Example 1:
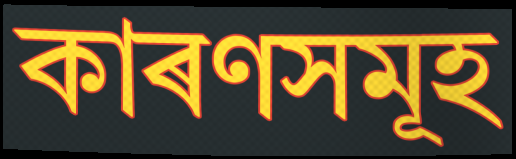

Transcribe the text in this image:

কাৰণসমূহ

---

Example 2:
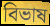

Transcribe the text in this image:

বিভাষ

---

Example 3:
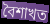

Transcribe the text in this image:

বৈশাখত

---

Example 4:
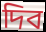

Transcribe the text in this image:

দিব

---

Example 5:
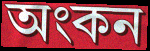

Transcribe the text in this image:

অংকন